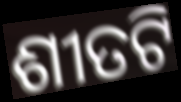
ଶୀତଟି